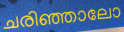
ചരിഞ്ഞാലോ